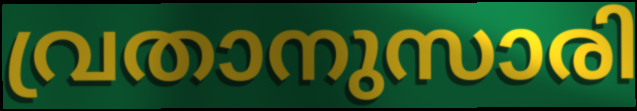
വ്രതാനുസാരി